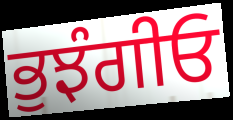
ਭੁਝੰਗੀਓ